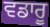
ਵਡਾਰੂ